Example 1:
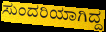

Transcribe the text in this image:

ಸುಂದರಿಯಾಗಿದ್ದ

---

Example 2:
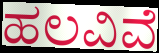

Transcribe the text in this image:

ಹಲವಿವೆ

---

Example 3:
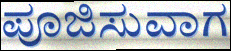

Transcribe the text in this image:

ಪೂಜಿಸುವಾಗ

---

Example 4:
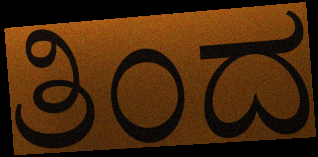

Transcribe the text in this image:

ತಿಂದ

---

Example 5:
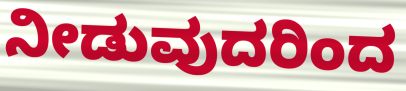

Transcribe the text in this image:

ನೀಡುವುದರಿಂದ